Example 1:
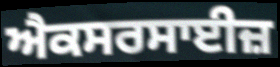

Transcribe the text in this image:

ਐਕਸਰਸਾਈਜ਼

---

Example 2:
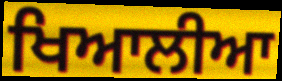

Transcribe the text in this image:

ਖਿਆਲੀਆ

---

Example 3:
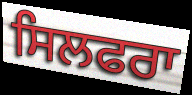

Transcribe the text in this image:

ਸਿਲਫਰਾ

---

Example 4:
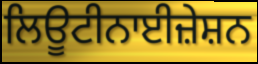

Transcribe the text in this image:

ਲਿਊਟੀਨਾਈਜ਼ੇਸ਼ਨ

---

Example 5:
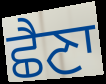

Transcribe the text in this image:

ਛੈਣਾ